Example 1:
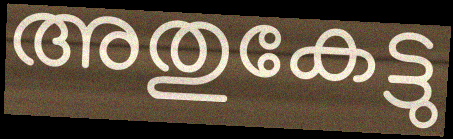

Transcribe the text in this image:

അതുകേട്ടു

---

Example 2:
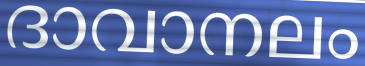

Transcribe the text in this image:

ദാവാനലം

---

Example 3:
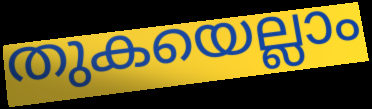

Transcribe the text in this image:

തുകയെല്ലാം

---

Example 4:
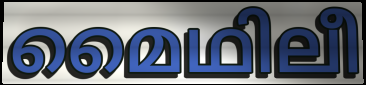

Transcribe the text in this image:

മൈഥിലീ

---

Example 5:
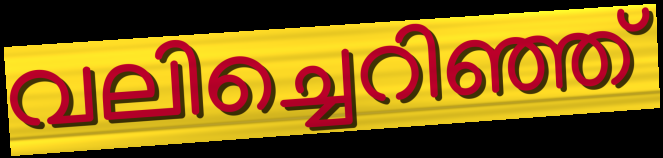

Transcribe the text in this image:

വലിച്ചെറിഞ്ഞ്